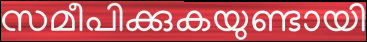
സമീപിക്കുകയുണ്ടായി